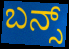
ಬನ್ಸ್